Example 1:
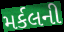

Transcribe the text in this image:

મર્કલની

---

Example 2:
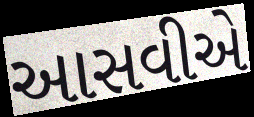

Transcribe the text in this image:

આસવીએ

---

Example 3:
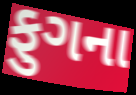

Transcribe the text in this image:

ફુગના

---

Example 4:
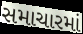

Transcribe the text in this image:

સમાચારમાં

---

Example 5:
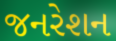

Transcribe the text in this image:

જનરેશન